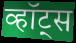
व्हॉट्‌स